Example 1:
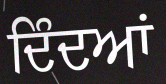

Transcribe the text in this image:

ਦਿੰਦਆਂ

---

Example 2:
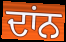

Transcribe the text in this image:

ਦਾਂਨ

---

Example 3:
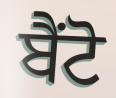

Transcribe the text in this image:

ਬੈਂਟੋ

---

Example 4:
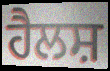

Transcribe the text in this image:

ਹੈਲਸ਼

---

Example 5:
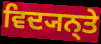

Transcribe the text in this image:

ਵਿਦ੍ਯਨ੍ਤੇ